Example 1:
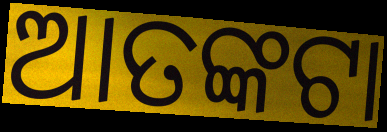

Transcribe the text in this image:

ଆତଙ୍କଟା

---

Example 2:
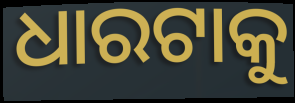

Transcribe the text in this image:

ଧାରଟାକୁ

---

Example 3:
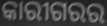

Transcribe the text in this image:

କାରୀଗରର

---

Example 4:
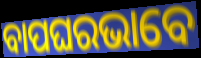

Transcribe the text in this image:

ବାପଘରଭାବେ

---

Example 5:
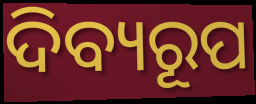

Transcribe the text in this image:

ଦିବ୍ୟରୂପ